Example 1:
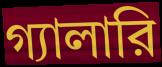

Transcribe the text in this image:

গ্যালারি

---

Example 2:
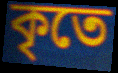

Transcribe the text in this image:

কৃতে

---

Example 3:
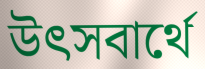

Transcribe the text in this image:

উৎসবার্থে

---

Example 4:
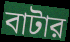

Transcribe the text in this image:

বাটার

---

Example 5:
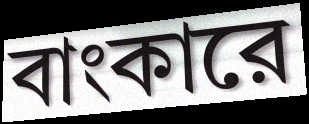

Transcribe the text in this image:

বাংকারে